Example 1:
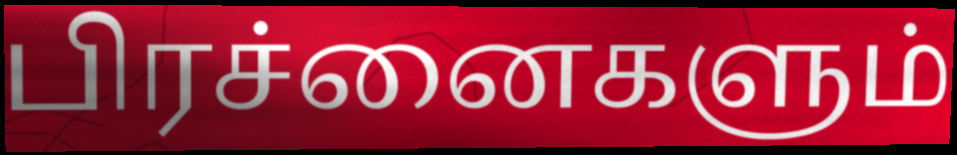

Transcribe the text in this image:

பிரச்னைகளும்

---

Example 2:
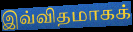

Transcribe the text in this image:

இவ்விதமாகக்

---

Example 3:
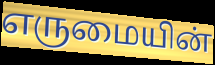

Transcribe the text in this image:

எருமையின்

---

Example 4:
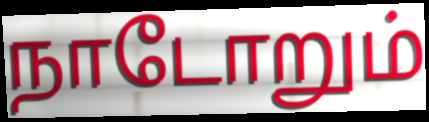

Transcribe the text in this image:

நாடோறும்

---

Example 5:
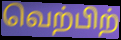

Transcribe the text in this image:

வெற்பிற்